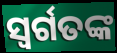
ସ୍ୱର୍ଗତଙ୍କ